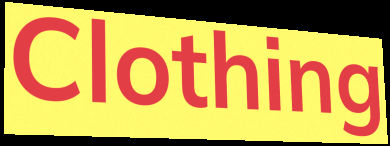
Clothing